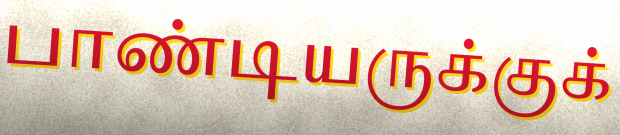
பாண்டியருக்குக்